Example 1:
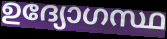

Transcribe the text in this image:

ഉദ്യോഗസ്ഥ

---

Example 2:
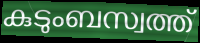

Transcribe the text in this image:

കുടുംബസ്വത്ത്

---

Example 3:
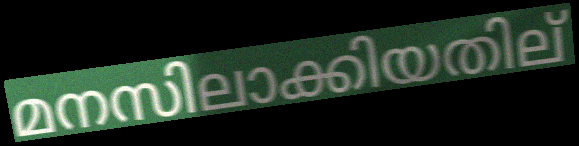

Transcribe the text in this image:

മനസിലാക്കിയതില്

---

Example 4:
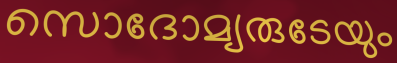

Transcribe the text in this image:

സൊദോമ്യരുടേയും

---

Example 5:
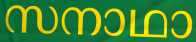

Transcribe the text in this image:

സനാഥാ